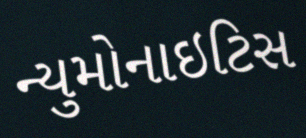
ન્યુમોનાઇટિસ